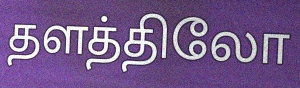
தளத்திலோ